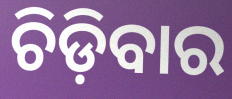
ଚିଡ଼ିବାର